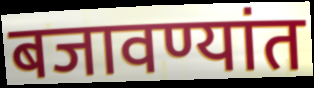
बजावण्यांत